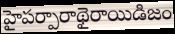
హైపర్పారాథైరాయిడిజం